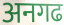
अनगढ